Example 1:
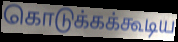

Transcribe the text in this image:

கொடுக்கக்கூடிய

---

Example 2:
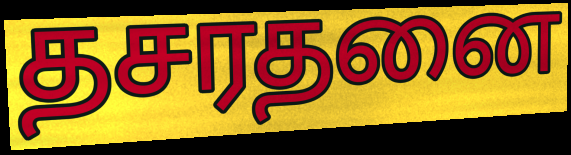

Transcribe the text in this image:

தசரதனை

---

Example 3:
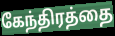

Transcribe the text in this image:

கேந்திரத்தை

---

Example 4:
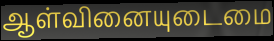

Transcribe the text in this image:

ஆள்வினையுடைமை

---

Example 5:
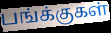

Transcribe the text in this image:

பங்க்குகள்